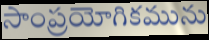
సాంప్రయోగికమును